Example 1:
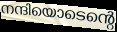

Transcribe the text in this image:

നന്ദിയൊടെന്റെ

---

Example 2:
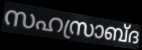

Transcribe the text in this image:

സഹസ്രാബ്ദ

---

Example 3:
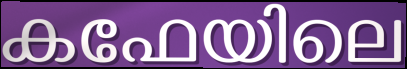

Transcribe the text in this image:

കഫേയിലെ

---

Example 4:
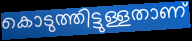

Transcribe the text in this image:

കൊടുത്തിട്ടുള്ളതാണ്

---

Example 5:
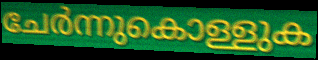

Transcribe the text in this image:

ചേർന്നുകൊള്ളുക